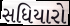
સધિયારો